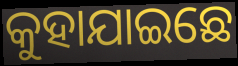
କୁହାଯାଇଛେ